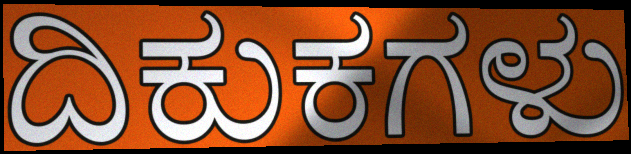
ದಿಕುಕಗಳು